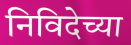
निविदेच्या